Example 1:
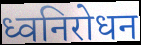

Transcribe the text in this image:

ध्वनिरोधन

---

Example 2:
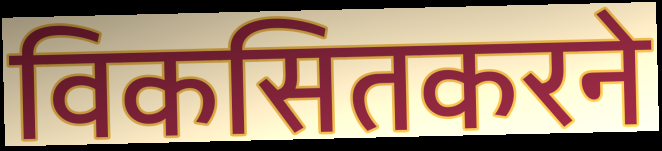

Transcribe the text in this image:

विकसितकरने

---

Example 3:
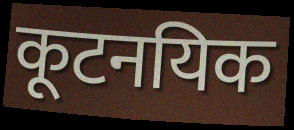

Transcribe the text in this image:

कूटनयिक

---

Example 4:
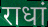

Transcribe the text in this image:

राधां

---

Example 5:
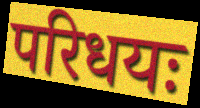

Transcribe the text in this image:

परिधयः